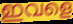
ഇവളെ